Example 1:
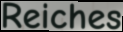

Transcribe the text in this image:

Reiches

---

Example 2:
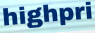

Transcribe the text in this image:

highpri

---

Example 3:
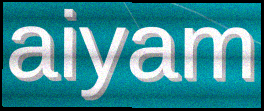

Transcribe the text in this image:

aiyam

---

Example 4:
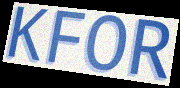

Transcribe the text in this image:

KFOR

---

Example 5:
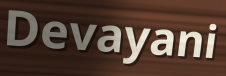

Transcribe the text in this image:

Devayani